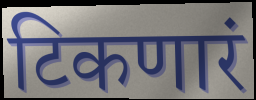
टिकणारं